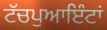
ਟੱਚਪੁਆਇੰਟਾਂ